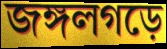
জঙ্গলগড়ে